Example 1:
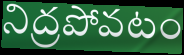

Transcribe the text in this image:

నిద్రపోవటం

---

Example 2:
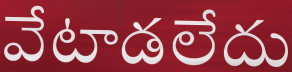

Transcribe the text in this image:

వేటాడలేదు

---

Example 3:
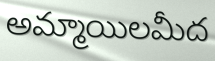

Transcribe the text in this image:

అమ్మాయిలమీద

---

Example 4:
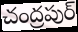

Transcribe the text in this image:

చంద్రపుర్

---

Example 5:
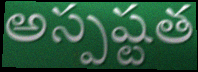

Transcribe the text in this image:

అస్పష్టత